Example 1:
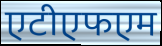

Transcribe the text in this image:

एटीएफएम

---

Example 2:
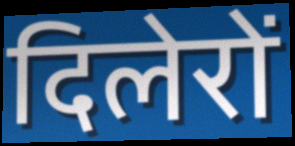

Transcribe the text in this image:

दिलेरों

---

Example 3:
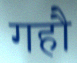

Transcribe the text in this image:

गहौ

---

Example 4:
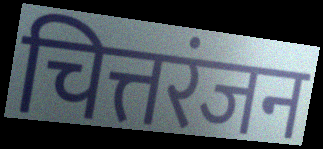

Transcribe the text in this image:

चित्तरंजन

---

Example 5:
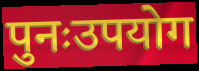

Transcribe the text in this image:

पुनःउपयोग